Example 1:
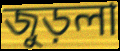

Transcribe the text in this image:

জুড়লা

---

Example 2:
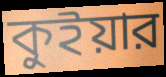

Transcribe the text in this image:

কুইয়ার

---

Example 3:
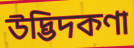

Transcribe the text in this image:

উদ্ভিদকণা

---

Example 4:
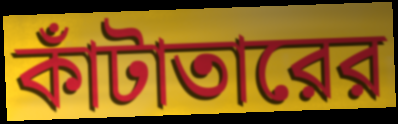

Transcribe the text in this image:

কাঁটাতারের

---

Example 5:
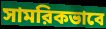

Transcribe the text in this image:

সামরিকভাবে